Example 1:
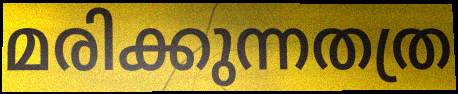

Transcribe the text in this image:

മരിക്കുന്നതത്ര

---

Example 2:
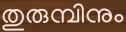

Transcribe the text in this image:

തുരുമ്പിനും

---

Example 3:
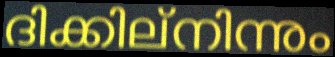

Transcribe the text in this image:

ദിക്കില്നിന്നും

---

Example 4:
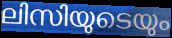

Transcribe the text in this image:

ലിസിയുടെയും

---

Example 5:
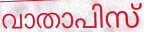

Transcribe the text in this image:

വാതാപിസ്